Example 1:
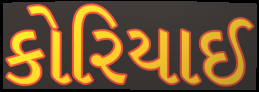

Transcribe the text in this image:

કોરિયાઈ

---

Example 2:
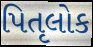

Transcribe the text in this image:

પિતૃલોક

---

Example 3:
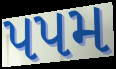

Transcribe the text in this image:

પપમ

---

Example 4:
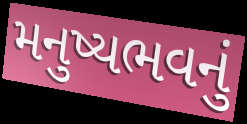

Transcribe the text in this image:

મનુષ્યભવનું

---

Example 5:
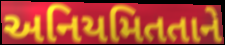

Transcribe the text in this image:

અનિયમિતતાને